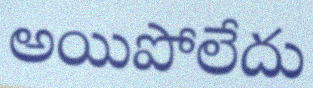
అయిపోలేదు